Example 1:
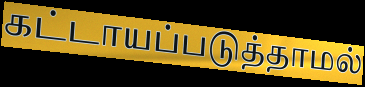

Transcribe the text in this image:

கட்டாயப்படுத்தாமல்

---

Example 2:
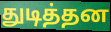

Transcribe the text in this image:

துடித்தன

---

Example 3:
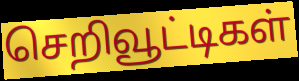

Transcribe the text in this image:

செறிவூட்டிகள்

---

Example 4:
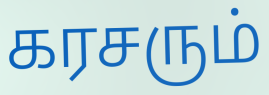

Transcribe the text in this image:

கரசரும்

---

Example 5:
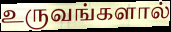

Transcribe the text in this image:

உருவங்களால்